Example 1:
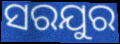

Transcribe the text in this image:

ସରଯୁର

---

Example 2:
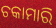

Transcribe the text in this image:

ଚକାମାରି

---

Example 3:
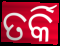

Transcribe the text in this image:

ତର୍କି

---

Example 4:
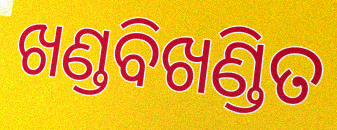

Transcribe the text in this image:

ଖଣ୍ଡବିଖଣ୍ଡିତ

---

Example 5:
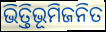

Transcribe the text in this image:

ଭିତ୍ତିଭୂମିଜନିତ